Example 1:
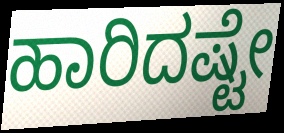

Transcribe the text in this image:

ಹಾರಿದಷ್ಟೇ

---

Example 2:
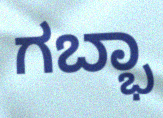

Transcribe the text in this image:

ಗಬ್ಭಾ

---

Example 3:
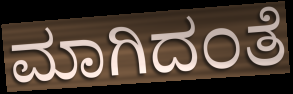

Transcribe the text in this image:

ಮಾಗಿದಂತೆ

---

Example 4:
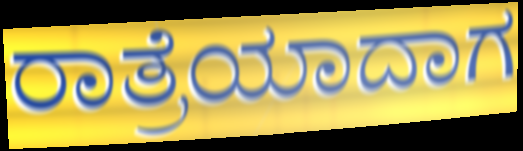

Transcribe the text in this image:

ರಾತ್ರೆಯಾದಾಗ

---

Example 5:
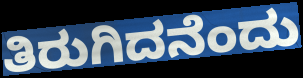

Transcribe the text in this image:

ತಿರುಗಿದನೆಂದು